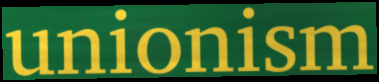
unionism